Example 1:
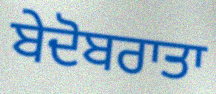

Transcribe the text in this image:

ਬੇਦੋਬਰਾਤਾ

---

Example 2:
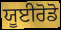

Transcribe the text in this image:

ਯੂਈਰੋਡੋ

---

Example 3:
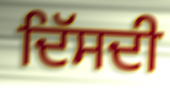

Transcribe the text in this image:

ਦਿੱਸਦੀ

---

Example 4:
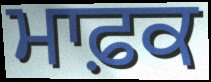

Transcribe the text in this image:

ਮਾਫ਼ਕ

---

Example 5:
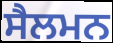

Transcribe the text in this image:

ਸੈਲਮਨ